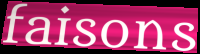
faisons